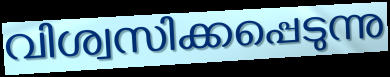
വിശ്വസിക്കപ്പെടുന്നു